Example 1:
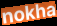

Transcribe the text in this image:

nokha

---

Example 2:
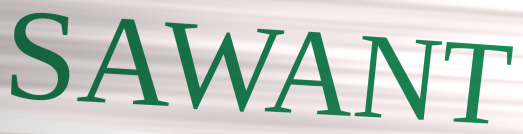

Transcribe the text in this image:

SAWANT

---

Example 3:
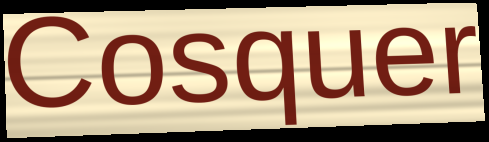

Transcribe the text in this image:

Cosquer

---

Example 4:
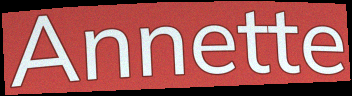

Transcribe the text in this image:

Annette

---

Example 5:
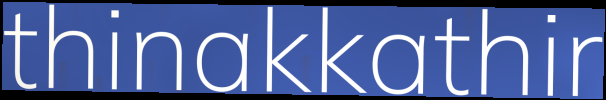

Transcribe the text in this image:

thinakkathir